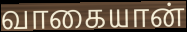
வாகையான்